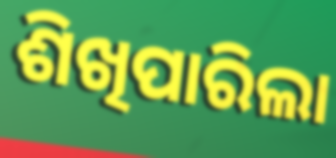
ଶିଖିପାରିଲା